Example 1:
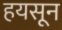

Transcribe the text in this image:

हयसून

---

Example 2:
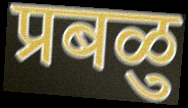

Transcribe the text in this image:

प्रबळु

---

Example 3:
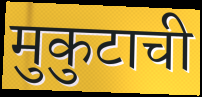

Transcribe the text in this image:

मुकुटाची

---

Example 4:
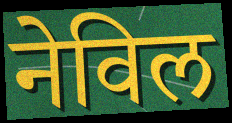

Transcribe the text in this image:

नेविल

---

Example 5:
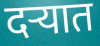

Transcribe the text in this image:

दऱ्यात